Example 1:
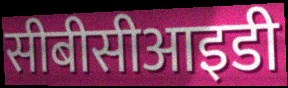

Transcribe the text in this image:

सीबीसीआइडी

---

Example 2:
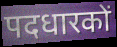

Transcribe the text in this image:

पदधारकों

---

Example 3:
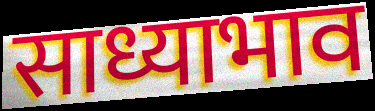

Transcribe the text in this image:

साध्याभाव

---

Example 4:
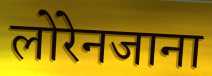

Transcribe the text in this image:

लोरेनजाना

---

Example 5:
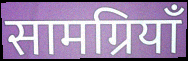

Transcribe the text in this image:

सामग्रियाँ